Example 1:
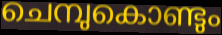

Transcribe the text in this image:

ചെമ്പുകൊണ്ടും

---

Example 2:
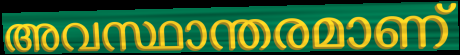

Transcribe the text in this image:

അവസ്ഥാന്തരമാണ്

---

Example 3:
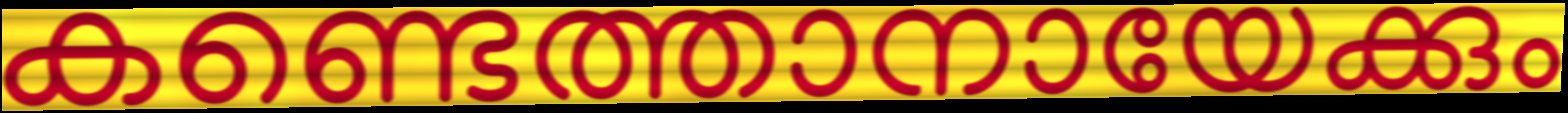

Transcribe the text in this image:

കണ്ടെത്താനായേക്കും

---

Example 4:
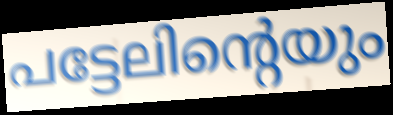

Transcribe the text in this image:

പട്ടേലിന്റെയും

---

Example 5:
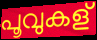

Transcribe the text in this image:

പൂവുകള്